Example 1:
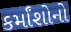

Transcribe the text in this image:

કર્માંશોનો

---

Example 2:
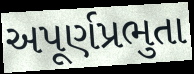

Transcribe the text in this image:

અપૂર્ણપ્રભુતા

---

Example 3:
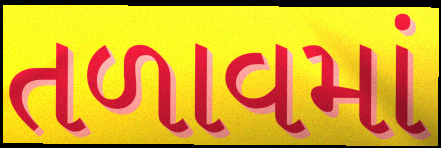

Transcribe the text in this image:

તળાવમાં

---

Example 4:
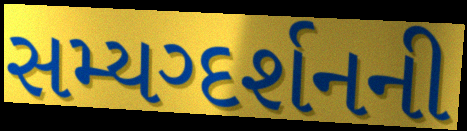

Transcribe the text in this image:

સમ્યગ્દર્શનની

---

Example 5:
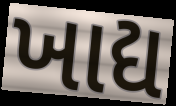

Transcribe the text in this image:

ખાદ્ય